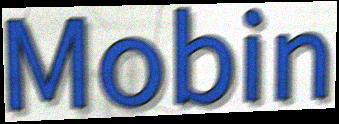
Mobin